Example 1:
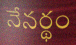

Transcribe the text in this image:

నేనర్థం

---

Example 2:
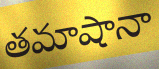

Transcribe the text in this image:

తమాషానా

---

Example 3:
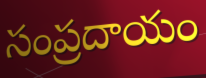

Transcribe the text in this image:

సంప్రదాయం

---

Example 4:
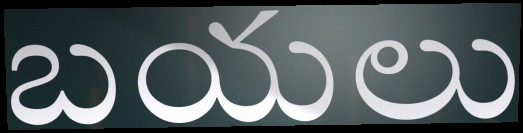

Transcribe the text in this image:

బయలు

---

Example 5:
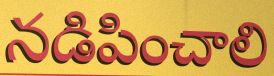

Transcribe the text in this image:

నడిపించాలి